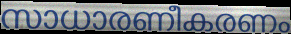
സാധാരണീകരണം